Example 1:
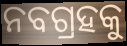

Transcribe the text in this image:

ନବଗ୍ରହକୁ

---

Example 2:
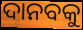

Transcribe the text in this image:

ଦାନବକୁ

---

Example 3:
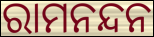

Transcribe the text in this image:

ରାମନନ୍ଦନ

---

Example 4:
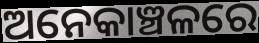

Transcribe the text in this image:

ଅନେକାଞ୍ଚଳରେ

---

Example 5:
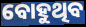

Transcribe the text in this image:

ବୋହୁଥିବ